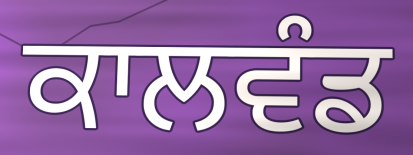
ਕਾਲਵੰਡ